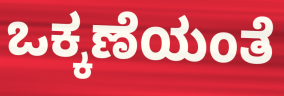
ಒಕ್ಕಣೆಯಂತೆ